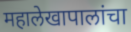
महालेखापालांचा